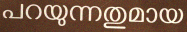
പറയുന്നതുമായ